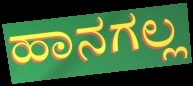
ಹಾನಗಲ್ಲ